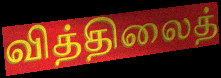
வித்திலைத்